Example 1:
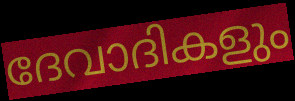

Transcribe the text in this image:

ദേവാദികളും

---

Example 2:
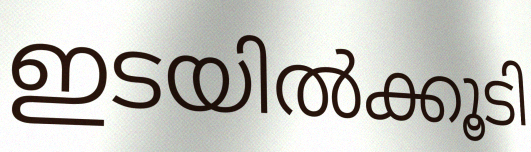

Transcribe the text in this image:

ഇടയിൽക്കൂടി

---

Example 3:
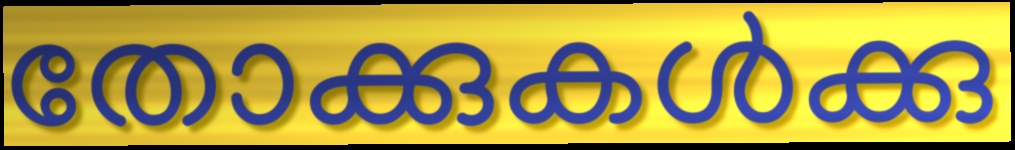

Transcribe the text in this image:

തോക്കുകൾക്കു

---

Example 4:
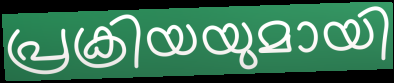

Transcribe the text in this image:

പ്രക്രിയയുമായി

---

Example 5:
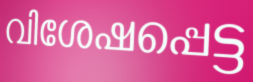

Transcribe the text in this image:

വിശേഷപ്പെട്ട